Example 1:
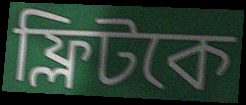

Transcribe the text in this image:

ফ্লিটকে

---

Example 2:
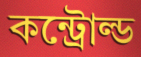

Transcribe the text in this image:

কন্ট্রোল্ড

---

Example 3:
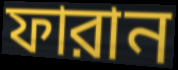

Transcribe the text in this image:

ফারান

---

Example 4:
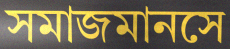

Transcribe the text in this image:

সমাজমানসে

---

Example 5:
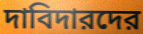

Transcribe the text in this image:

দাবিদারদের